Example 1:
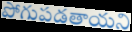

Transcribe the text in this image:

పోగుపడతాయని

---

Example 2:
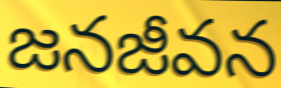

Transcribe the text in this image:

జనజీవన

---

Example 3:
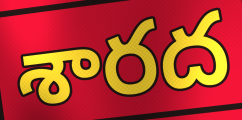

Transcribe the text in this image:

శారద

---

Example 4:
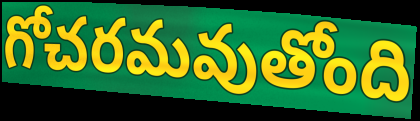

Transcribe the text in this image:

గోచరమవుతోంది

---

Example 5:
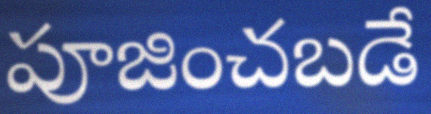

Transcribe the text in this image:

పూజించబడే